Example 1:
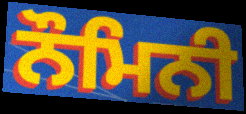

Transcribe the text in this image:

ਨੌਮਿਨੀ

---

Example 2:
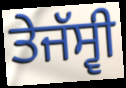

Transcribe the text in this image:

ਤੇਜੱਸ੍ਵੀ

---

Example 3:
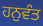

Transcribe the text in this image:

ਹਨੁਵੰਤ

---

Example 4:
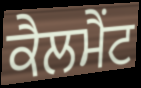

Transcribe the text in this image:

ਕੈਲਮੈਂਟ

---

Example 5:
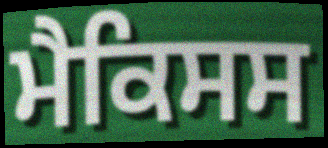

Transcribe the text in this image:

ਮੈਕਿਸਸ